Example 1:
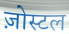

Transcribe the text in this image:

ज़ोस्टल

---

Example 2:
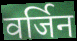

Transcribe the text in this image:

वर्जिन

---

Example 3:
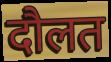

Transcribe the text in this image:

दौलत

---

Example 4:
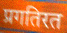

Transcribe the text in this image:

प्रगतिरत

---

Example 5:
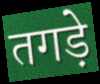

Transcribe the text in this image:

तगड़े